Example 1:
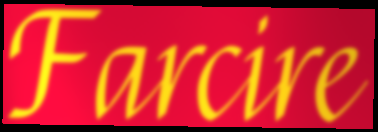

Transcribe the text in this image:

Farcire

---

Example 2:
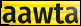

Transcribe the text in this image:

aawta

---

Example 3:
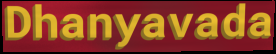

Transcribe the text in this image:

Dhanyavada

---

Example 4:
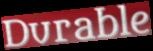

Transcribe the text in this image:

Durable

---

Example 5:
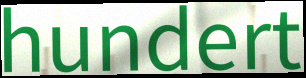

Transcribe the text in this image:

hundert